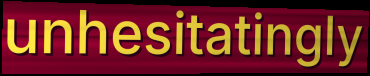
unhesitatingly